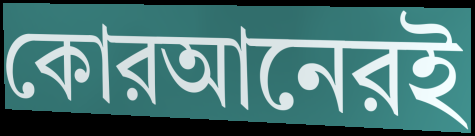
কোরআনেরই